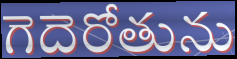
గెదెరోతును